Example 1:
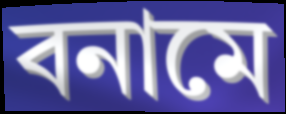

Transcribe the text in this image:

বনামে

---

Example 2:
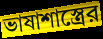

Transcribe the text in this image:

ভাষাশাস্ত্রের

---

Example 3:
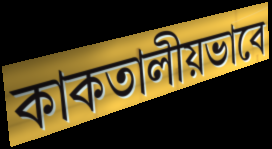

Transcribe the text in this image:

কাকতালীয়ভাবে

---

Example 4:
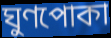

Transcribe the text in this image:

ঘুণপোকা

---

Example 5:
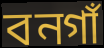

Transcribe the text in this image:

বনগাঁ